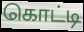
கொட்டி